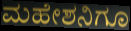
ಮಹೇಶನಿಗೂ